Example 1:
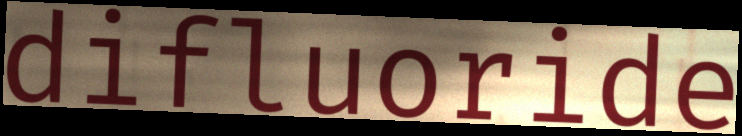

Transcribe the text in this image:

difluoride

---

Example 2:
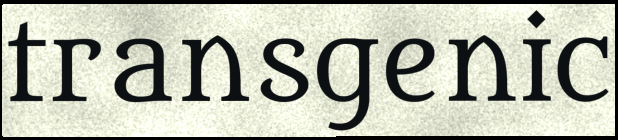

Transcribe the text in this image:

transgenic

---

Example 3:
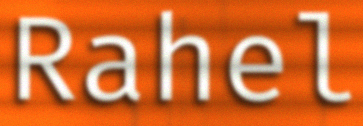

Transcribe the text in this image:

Rahel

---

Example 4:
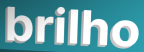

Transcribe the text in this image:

brilho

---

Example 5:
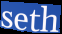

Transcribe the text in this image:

seth